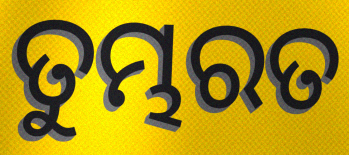
ତୁମ୍ଭରତ